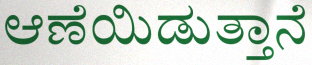
ಆಣೆಯಿಡುತ್ತಾನೆ